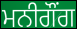
ਮਨੀਗੌਂਗ